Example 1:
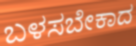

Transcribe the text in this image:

ಬಳಸಬೇಕಾದ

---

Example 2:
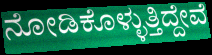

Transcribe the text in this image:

ನೋಡಿಕೊಳ್ಳುತ್ತಿದ್ದೇವೆ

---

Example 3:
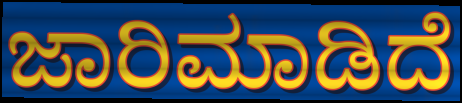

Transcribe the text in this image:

ಜಾರಿಮಾಡಿದೆ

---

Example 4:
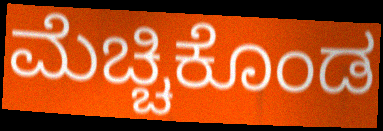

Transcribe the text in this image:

ಮೆಚ್ಚಿಕೊಂಡ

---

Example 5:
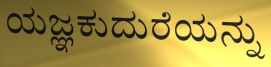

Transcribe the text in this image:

ಯಜ್ಞಕುದುರೆಯನ್ನು